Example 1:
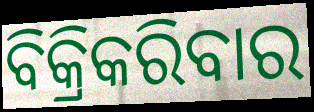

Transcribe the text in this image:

ବିକ୍ରିକରିବାର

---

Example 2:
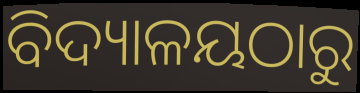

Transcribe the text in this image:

ବିଦ୍ୟାଳୟଠାରୁ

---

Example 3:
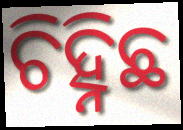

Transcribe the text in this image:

ଚିହ୍ନିଛ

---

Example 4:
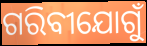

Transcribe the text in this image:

ଗରିବୀଯୋଗୁଁ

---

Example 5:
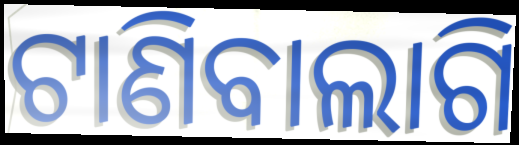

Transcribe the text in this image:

ଟାଣିବାଲାଗି